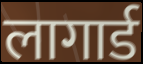
लागार्ड